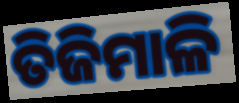
ତିଜିମାଳି